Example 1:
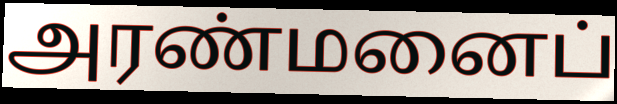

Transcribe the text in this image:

அரண்மனைப்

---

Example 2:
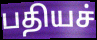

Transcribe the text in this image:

பதியச்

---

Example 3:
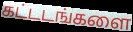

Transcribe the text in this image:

கட்டடங்களை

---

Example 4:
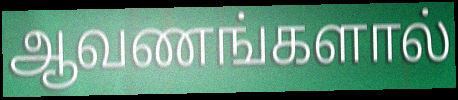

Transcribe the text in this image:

ஆவணங்களால்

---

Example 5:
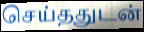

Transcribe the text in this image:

செய்ததுடன்